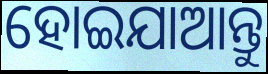
ହୋଇଯାଆନ୍ତୁ